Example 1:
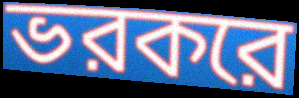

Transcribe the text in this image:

ভরকরে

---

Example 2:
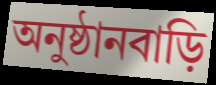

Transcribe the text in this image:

অনুষ্ঠানবাড়ি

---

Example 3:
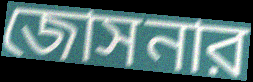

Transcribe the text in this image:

জোসনার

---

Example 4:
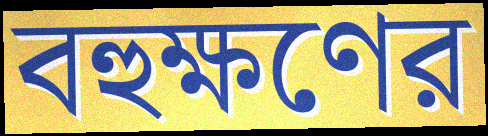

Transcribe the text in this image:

বহুক্ষণের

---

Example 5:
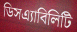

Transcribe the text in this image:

ডিসএ্যাবিলিটি